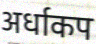
अर्धाकप